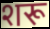
शरू